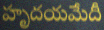
హృదయమేదీ